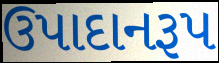
ઉપાદાનરૂપ